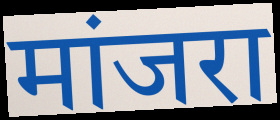
मांजरा